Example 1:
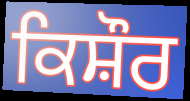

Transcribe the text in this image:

ਕਿਸ਼ੌਰ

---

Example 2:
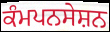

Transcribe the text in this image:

ਕੰਮਪਨਸੇਸ਼ਨ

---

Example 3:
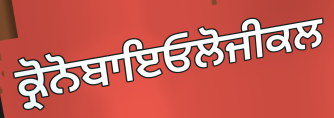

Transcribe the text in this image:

ਕ੍ਰੋਨੋਬਾਇਓਲੋਜੀਕਲ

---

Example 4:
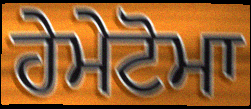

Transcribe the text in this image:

ਹੇਮੇਟੋਮਾ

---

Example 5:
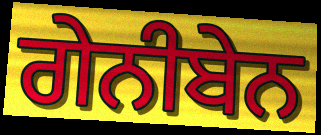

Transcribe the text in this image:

ਗੇਨੀਬੇਨ